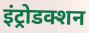
इंट्रोडक्शन